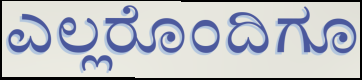
ಎಲ್ಲರೊಂದಿಗೂ